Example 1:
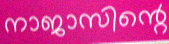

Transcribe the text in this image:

നാജാസിന്റെ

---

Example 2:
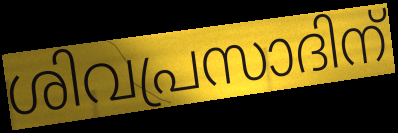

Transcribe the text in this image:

ശിവപ്രസാദിന്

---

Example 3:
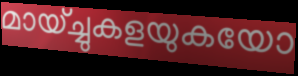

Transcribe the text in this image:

മായ്ച്ചുകളയുകയോ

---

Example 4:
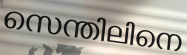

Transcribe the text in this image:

സെന്തിലിനെ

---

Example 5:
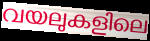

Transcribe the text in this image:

വയലുകളിലെ